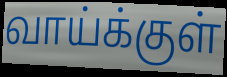
வாய்க்குள்